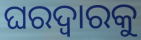
ଘରଦ୍ୱାରକୁ